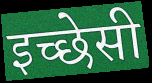
इच्छेसी